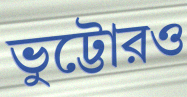
ভুট্টোরও